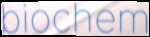
biochem